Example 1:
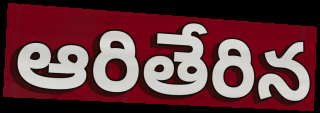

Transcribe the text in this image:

ఆరితేరిన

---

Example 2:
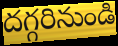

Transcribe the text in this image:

దగ్గరినుండి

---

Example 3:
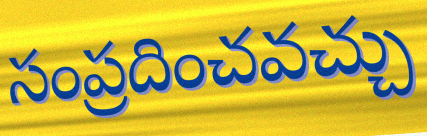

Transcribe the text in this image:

సంప్రదించవచ్చు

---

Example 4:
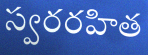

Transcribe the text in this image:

స్వరరహిత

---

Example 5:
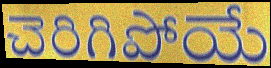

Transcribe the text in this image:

చెరిగిపోయే